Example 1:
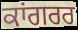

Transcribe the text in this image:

ਕਾਂਗਰਰ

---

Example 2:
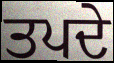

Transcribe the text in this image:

ਤਪਦੇ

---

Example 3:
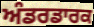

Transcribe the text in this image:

ਅੰਡਰਡਾਰਕ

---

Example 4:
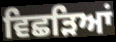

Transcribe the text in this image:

ਵਿਛੜਿਆਂ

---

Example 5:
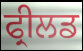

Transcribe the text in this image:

ਫ੍ਰੀਲਡ